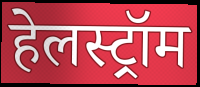
हेलस्ट्रॉम